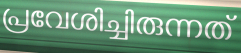
പ്രവേശിച്ചിരുന്നത്